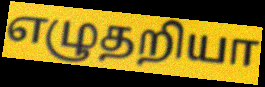
எழுதறியா